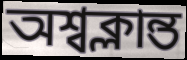
অশ্বক্লান্ত